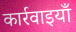
कार्रवाइयाँ